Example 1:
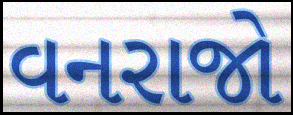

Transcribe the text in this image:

વનરાજો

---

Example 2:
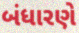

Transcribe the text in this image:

બંધારણે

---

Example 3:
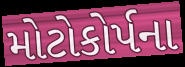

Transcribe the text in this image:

મોટોકોર્પના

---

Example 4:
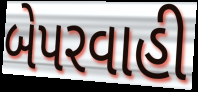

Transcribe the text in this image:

બેપરવાહી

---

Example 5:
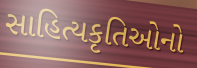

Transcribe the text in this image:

સાહિત્યકૃતિઓનો